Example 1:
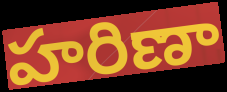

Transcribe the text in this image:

హరిణా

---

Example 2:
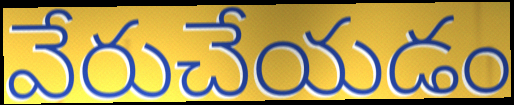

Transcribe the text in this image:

వేరుచేయడం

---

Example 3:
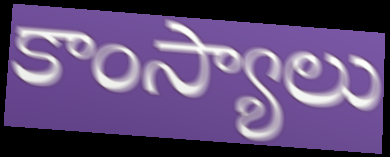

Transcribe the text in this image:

కాంస్యాలు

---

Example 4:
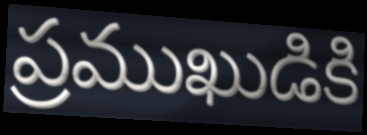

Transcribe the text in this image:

ప్రముఖుడికి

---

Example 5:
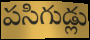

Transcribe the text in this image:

పసిగుడ్లు